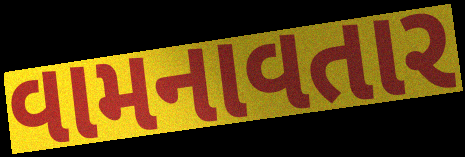
વામનાવતાર